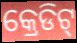
କ୍ରେଡିଟ୍